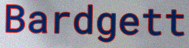
Bardgett